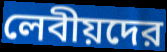
লেবীয়দের